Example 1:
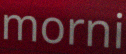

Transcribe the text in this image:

morni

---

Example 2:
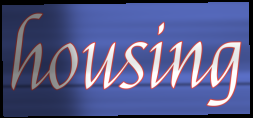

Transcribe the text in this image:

housing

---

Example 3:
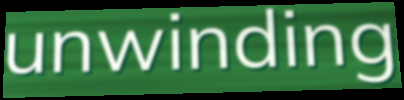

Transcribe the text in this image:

unwinding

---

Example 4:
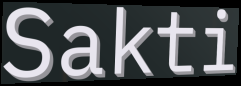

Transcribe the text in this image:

Sakti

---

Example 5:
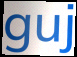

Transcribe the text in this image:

guj